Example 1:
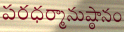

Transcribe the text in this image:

పరధర్మానుష్ఠానం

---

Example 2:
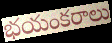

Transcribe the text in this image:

భయంకరాలు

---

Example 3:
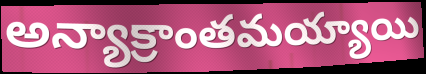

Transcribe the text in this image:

అన్యాక్రాంతమయ్యాయి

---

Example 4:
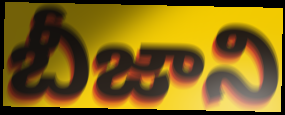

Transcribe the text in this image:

బీజాని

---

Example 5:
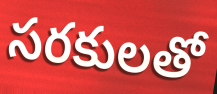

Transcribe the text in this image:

సరకులతో